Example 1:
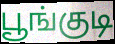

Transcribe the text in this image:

பூங்குடி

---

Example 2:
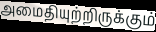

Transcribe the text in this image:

அமைதியுற்றிருக்கும்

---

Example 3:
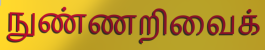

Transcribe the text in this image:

நுண்ணறிவைக்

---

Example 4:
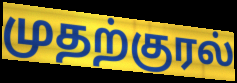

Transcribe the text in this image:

முதற்குரல்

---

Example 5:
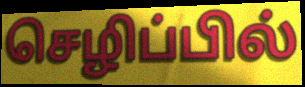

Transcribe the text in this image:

செழிப்பில்